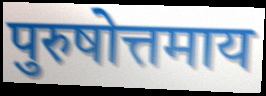
पुरुषोत्तमाय